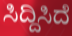
ಸಿದ್ದಿಸಿದೆ